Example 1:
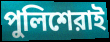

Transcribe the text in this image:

পুলিশেরাই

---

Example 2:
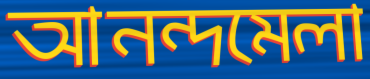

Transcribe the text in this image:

আনন্দমেলা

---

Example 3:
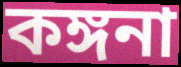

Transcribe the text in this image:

কঙ্গনা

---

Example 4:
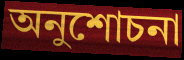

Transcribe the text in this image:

অনুশোচনা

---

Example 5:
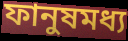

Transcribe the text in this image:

ফানুষমধ্য